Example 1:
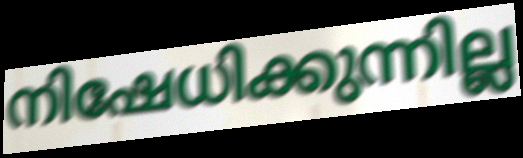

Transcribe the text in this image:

നിഷേധിക്കുന്നില്ല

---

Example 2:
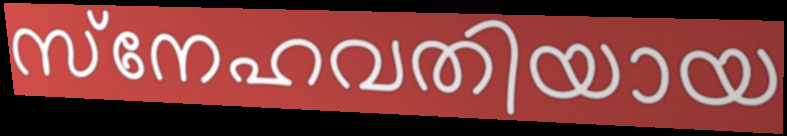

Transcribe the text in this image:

സ്‌നേഹവതിയായ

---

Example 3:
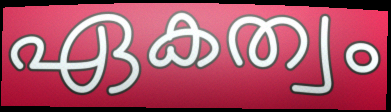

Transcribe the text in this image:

ഏകത്വം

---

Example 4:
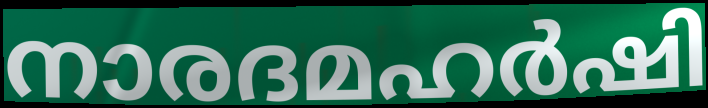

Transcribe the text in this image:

നാരദമഹർഷി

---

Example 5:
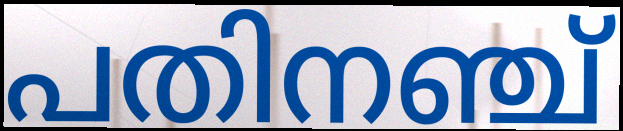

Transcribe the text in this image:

പതിനഞ്ച്